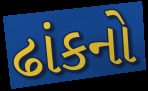
ઢાંકનો